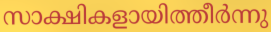
സാക്ഷികളായിത്തീർന്നു